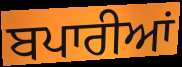
ਬਪਾਰੀਆਂ